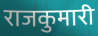
राजकुमारी